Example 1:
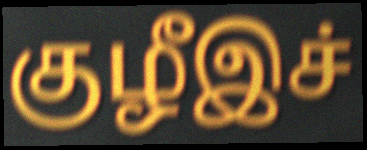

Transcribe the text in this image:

குழீஇச்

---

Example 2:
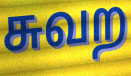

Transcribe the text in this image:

சுவற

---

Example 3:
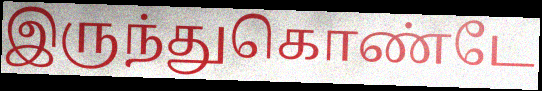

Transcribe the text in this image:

இருந்துகொண்டே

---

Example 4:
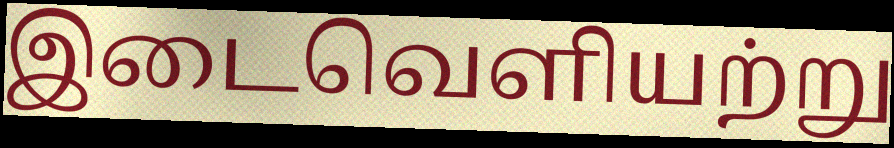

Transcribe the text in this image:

இடைவெளியற்று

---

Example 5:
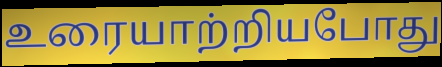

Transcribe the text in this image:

உரையாற்றியபோது